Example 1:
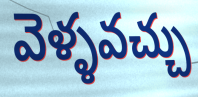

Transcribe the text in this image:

వెళ్ళవచ్చు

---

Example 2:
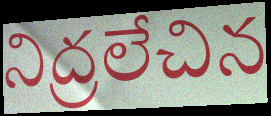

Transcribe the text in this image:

నిద్రలేచిన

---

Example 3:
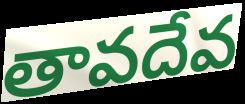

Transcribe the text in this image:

తావదేవ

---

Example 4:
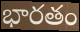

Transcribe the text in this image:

భారతం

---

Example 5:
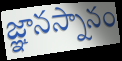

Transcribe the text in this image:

జ్ఞానస్నానం